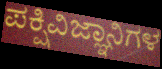
ಪಕ್ಷಿವಿಜ್ಞಾನಿಗಳ